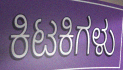
ಕಿಟಕಿಗಳು